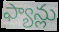
ఫ్యాన్లు